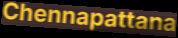
Chennapattana